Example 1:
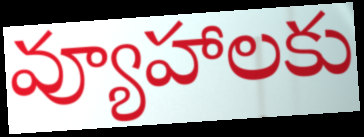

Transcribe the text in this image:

వ్యూహాలకు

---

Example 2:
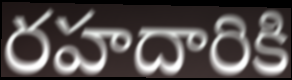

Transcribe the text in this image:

రహదారికి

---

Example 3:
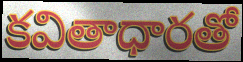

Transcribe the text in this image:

కవితాధారతో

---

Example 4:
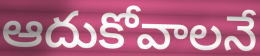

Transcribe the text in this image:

ఆదుకోవాలనే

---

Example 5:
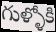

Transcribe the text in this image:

గుళ్ళోకి